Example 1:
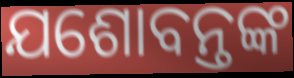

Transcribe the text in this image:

ଯଶୋବନ୍ତଙ୍କ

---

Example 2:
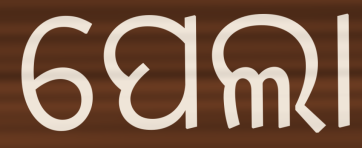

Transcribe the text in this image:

ପେଲା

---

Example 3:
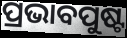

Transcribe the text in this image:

ପ୍ରଭାବପୁଷ୍ଟ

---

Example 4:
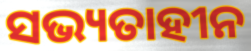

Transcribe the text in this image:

ସଭ୍ୟତାହୀନ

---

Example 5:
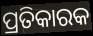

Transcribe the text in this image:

ପ୍ରତିକାରକ